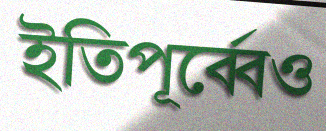
ইতিপূর্ব্বেও